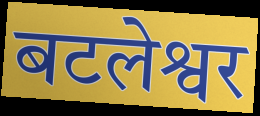
बटलेश्वर